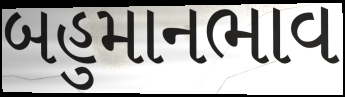
બહુમાનભાવ